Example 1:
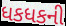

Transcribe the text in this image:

ધકધકની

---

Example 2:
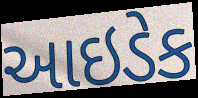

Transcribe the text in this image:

આઇડેક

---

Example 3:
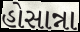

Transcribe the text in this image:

હોસાન્ના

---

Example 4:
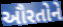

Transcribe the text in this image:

ઔરતોને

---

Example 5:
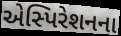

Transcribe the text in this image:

એસ્પિરેશનના